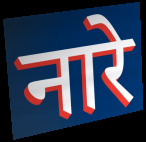
नारे